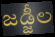
జడ్జీల